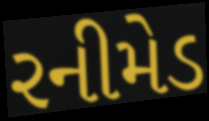
રનીમેડ